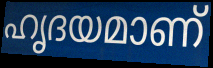
ഹൃദയമാണ്